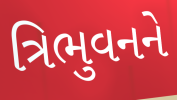
ત્રિભુવનને